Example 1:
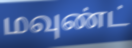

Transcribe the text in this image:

மவுண்ட்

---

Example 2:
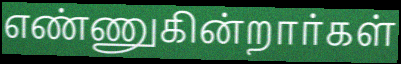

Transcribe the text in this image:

எண்ணுகின்றார்கள்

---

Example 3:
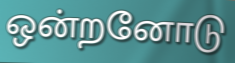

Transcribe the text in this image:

ஒன்றனோடு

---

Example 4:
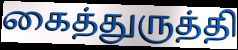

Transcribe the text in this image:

கைத்துருத்தி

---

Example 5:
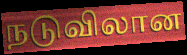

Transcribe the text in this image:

நடுவிலான